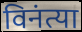
विनंत्या